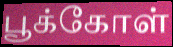
பூக்கோள்